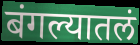
बंगल्यातलं